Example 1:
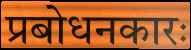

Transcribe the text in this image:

प्रबोधनकारः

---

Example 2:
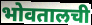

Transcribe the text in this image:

भोवतालची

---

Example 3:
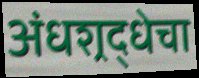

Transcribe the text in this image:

अंधश्रद्धेचा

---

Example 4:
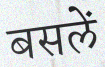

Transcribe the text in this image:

बसलें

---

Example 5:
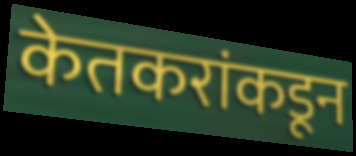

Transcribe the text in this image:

केतकरांकडून